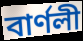
বাৰ্ণলী